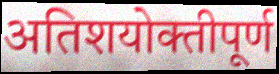
अतिशयोक्‍तीपूर्ण